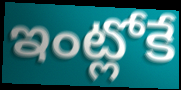
ఇంట్లోకే